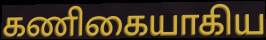
கணிகையாகிய